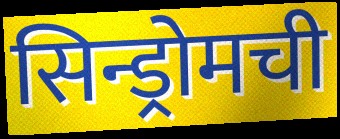
सिन्ड्रोमची